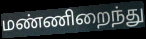
மண்ணிறைந்து